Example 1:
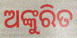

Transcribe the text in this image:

ଅଙ୍କୁରିତ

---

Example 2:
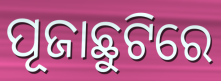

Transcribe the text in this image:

ପୂଜାଛୁଟିରେ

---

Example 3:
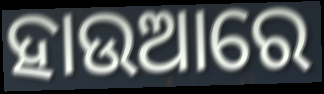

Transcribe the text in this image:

ହାଉଆରେ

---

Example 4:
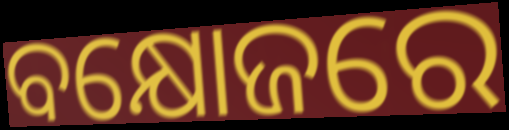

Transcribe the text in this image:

ବକ୍ଷୋଜରେ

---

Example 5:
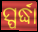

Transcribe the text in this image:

ସ୍ପର୍ଦ୍ଧା